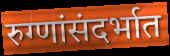
रुग्णांसंदर्भात